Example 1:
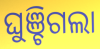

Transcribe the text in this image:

ଘୁଞ୍ଚିଗଲା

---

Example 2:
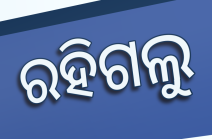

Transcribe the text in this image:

ରହିଗଲୁ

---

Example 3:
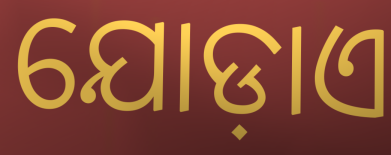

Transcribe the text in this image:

ଯୋଡ଼ାଏ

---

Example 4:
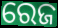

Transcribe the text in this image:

ରେଜ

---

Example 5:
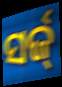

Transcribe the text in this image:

ସର୍ଜ୍